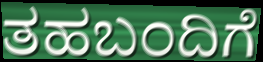
ತಹಬಂದಿಗೆ